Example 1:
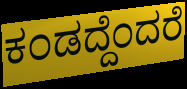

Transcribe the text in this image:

ಕಂಡದ್ದೆಂದರೆ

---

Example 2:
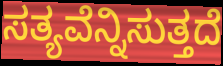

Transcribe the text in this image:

ಸತ್ಯವೆನ್ನಿಸುತ್ತದೆ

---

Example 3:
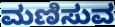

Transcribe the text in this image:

ಮಣಿಸುವ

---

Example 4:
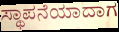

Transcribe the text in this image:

ಸ್ಥಾಪನೆಯಾದಾಗ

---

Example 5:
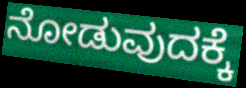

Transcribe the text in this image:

ನೋಡುವುದಕ್ಕೆ